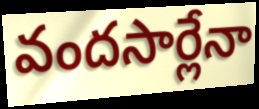
వందసార్లేనా